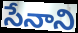
సేనాని